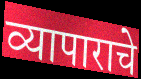
व्यापाराचे